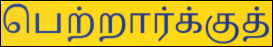
பெற்றார்க்குத்